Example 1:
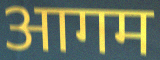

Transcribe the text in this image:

आगम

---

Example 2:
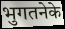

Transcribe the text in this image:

भुगतनेके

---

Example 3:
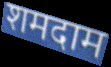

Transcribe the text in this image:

शमदाम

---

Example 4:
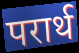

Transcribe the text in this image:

परार्थ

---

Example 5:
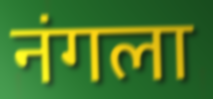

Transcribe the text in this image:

नंगला